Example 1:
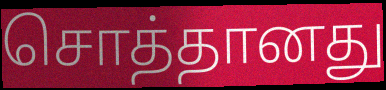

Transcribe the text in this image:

சொத்தானது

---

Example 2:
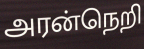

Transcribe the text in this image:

அரன்நெறி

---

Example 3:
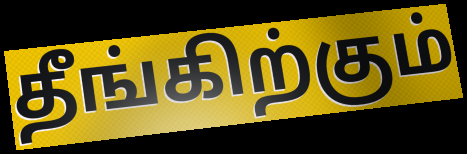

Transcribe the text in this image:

தீங்கிற்கும்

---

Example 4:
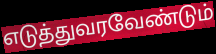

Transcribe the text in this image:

எடுத்துவரவேண்டும்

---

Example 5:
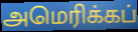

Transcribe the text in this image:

அமெரிக்கப்